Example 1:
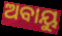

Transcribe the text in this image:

ଅବାୟୁ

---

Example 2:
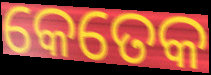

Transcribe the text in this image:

କେତେକ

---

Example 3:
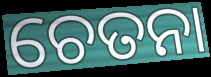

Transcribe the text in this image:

ଚେତନା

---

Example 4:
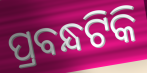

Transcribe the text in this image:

ପ୍ରବନ୍ଧଟିକି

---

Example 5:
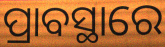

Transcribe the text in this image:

ପ୍ରାବସ୍ଥାରେ